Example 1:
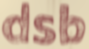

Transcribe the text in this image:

dsb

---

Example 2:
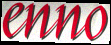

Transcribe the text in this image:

enno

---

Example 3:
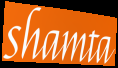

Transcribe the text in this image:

shamta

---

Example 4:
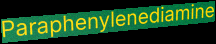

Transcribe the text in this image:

Paraphenylenediamine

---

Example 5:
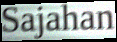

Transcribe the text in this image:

Sajahan